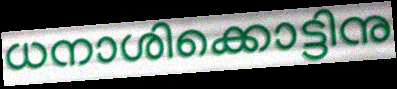
ധനാശിക്കൊട്ടിനു